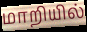
மாறியில்